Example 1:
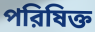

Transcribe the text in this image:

পরিষিক্ত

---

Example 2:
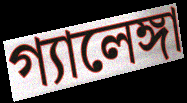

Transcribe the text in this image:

গ্যালেঙ্গা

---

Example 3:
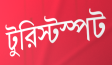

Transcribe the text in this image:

টুরিস্টস্পট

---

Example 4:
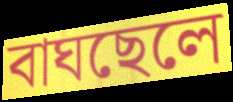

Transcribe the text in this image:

বাঘছেলে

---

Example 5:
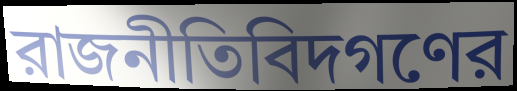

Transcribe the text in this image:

রাজনীতিবিদগণের